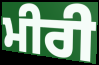
ਮੀਰੀ